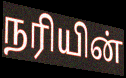
நரியின்